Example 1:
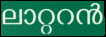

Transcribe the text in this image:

ലാറ്ററൻ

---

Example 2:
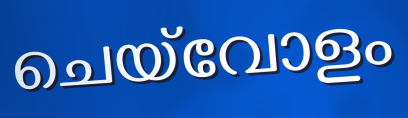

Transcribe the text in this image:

ചെയ്‌വോളം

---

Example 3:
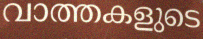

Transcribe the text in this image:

വാത്തകളുടെ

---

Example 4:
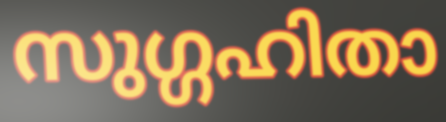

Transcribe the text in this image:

സുഗ്ഗഹിതാ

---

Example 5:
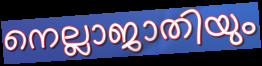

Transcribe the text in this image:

നെല്ലാജാതിയും